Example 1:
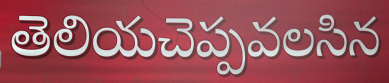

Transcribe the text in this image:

తెలియచెప్పవలసిన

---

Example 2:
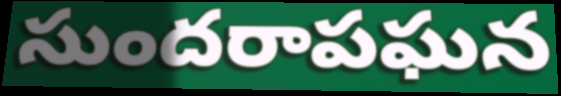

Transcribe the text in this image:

సుందరాపఘన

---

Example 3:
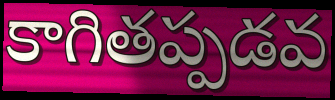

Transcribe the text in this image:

కాగితప్పడవ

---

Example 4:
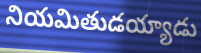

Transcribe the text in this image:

నియమితుడయ్యాడు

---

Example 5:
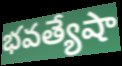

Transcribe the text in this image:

భవత్యేషా